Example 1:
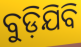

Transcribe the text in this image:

ବୁଡ଼ିଯିବି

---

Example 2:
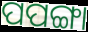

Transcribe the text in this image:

ପପଙ୍ଗା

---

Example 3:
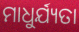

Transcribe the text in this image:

ମାଧୁର୍ଯ୍ୟତା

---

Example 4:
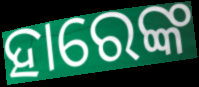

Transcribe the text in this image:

ହାରେଙ୍କ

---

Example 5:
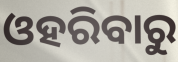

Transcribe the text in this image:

ଓହରିବାରୁ